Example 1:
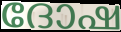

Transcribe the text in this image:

ദോഷ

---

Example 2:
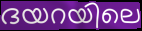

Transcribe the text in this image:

ദയറയിലെ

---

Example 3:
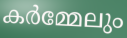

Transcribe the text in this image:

കർമ്മേലും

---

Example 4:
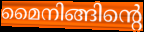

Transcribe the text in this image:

മൈനിങ്ങിന്റെ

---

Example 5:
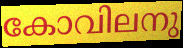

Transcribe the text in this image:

കോവിലനു